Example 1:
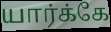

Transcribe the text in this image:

யார்க்கே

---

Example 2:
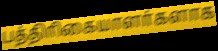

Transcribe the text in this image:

பத்திரிகையாளர்களாக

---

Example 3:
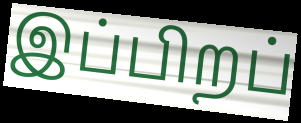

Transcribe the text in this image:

இப்பிறப்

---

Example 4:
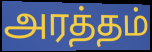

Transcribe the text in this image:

அரத்தம்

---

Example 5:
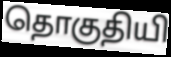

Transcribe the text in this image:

தொகுதியி